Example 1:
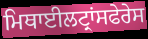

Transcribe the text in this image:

ਮਿਥਾਈਲਟ੍ਰਾਂਸਫੇਰੇਸ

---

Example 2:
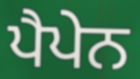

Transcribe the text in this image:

ਪੈਪੇਨ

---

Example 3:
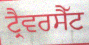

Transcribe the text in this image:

ਟ੍ਰੈਵਰਸੈੱਟ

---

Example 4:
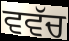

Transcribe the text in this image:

ਵਵੱਚ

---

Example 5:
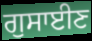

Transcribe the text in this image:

ਗੁਸਾਈਣ